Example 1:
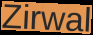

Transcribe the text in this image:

Zirwal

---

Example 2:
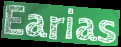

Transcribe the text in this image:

Earias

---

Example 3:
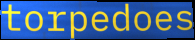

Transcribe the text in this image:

torpedoes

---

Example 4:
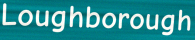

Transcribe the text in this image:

Loughborough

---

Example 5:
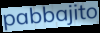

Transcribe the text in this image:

pabbajito